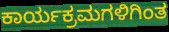
ಕಾರ್ಯಕ್ರಮಗಳಿಗಿಂತ